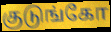
குடுங்கோ